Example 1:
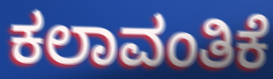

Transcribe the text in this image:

ಕಲಾವಂತಿಕೆ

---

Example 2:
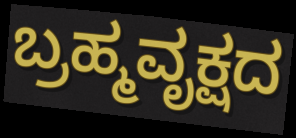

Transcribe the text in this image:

ಬ್ರಹ್ಮವೃಕ್ಷದ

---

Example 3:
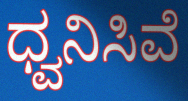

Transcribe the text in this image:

ಧ್ವನಿಸಿವೆ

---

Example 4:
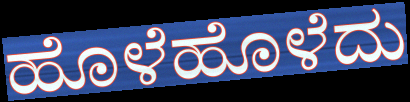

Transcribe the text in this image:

ಹೊಳೆಹೊಳೆದು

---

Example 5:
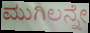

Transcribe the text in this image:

ಮುಗಿಲನ್ನೇ